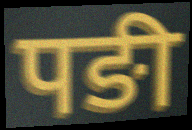
पङी